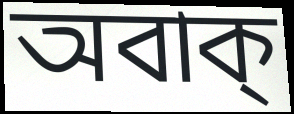
অবাক্